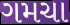
ગમચા